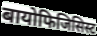
बायोफिजिसिस्ट